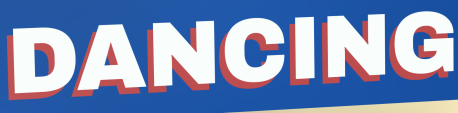
DANCING